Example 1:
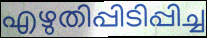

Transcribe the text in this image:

എഴുതിപ്പിടിപ്പിച്ച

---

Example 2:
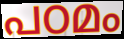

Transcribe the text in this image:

പഠമം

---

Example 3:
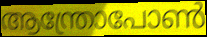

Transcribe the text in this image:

ആന്ത്രോപോൺ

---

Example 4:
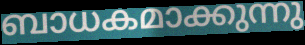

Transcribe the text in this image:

ബാധകമാക്കുന്നു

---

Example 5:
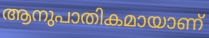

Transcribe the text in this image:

ആനുപാതികമായാണ്